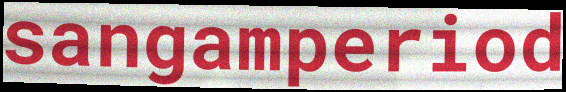
sangamperiod